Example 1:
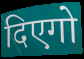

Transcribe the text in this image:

दिएगो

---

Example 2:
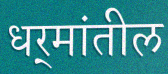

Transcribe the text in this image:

धर्मांतील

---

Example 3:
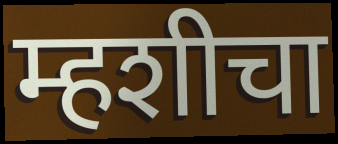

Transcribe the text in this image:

म्हशीचा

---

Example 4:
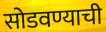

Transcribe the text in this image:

सोडवण्याची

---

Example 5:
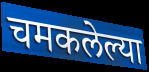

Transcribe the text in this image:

चमकलेल्या